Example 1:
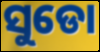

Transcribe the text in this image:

ସୁଡୋ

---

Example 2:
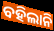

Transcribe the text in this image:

ବହିଲାନି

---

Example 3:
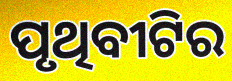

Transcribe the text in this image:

ପୃଥିବୀଟିର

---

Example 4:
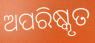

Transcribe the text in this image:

ଅପରିଷ୍କୃତ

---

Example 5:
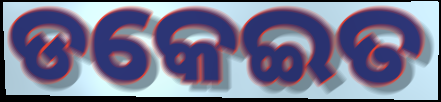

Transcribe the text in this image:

ଡକେଇତ